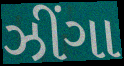
ઝીંગા